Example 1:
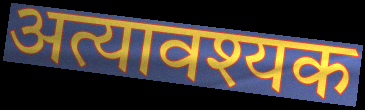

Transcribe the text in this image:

अत्यावश्यक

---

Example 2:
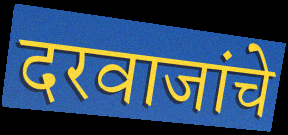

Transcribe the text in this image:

दरवाजांचे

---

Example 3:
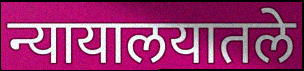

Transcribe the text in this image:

न्यायालयातले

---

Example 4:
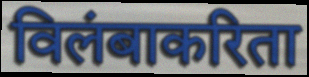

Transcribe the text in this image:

विलंबाकरिता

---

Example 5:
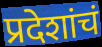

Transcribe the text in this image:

प्रदेशांचं